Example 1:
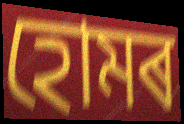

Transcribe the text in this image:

হোমৰ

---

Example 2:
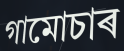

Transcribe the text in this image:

গামোচাৰ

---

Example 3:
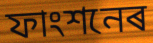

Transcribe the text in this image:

ফাংশনেৰ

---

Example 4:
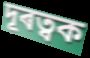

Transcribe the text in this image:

দূৰত্বক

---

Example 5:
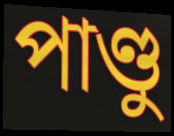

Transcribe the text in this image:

পাণ্ডু